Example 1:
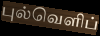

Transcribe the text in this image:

புல்வெளிப்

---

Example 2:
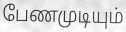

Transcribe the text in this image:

பேணமுடியும்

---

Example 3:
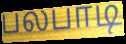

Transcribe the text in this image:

பலபாடி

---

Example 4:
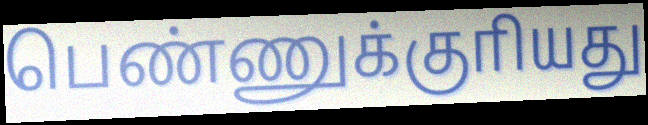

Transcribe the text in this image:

பெண்ணுக்குரியது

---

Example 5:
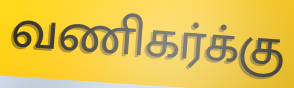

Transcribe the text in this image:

வணிகர்க்கு